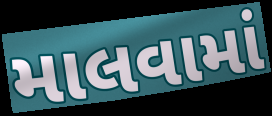
માલવામાં